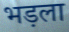
भड़ला